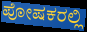
ಪೋಷಕರಲ್ಲಿ